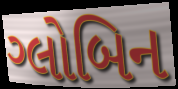
ગ્લોબિન